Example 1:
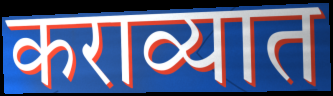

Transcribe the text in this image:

कराव्यात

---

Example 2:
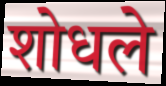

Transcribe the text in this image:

शोधले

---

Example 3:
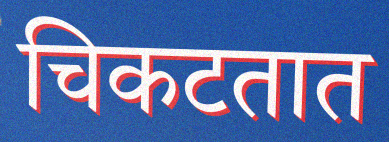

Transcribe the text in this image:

चिकटतात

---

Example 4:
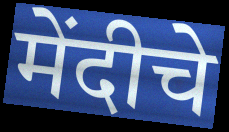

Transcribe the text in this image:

मेंदीचे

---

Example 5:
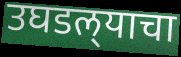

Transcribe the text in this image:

उघडल्याचा